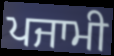
ਪਜਾਮੀ